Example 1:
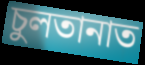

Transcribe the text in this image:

চুলতানাত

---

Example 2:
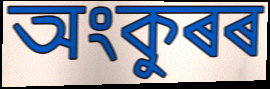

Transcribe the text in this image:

অংকুৰৰ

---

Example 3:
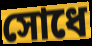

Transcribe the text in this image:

সোধে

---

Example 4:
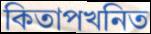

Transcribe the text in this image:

কিতাপখনিত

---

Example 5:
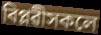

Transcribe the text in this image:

বিপ্লৱীসকলে